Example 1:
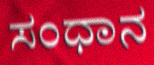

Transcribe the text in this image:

ಸಂಧಾನ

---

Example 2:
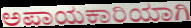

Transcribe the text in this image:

ಅಪಾಯಕಾರಿಯಾಗಿ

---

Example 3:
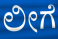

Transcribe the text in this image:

ಲೀಗೆ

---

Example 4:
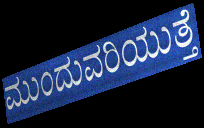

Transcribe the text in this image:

ಮುಂದುವರಿಯುತ್ತೆ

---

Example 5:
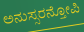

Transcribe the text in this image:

ಅನುಸ್ಸರನ್ತೋಪಿ